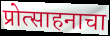
प्रोत्साहनाचा